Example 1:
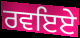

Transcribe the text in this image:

ਰਵਇਏ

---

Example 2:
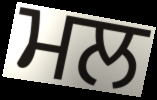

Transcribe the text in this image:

ਮਲ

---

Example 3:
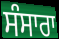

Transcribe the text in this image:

ਸੰਸਾਰਾ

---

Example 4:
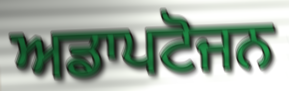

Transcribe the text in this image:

ਅਡਾਪਟੋਜਨ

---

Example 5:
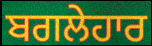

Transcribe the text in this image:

ਬਗਲੇਹਾਰ